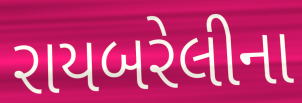
રાયબરેલીના